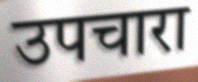
उपचारा